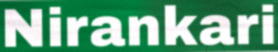
Nirankari